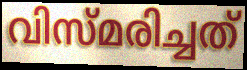
വിസ്മരിച്ചത്